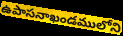
ఉపాసనాఖండములోని